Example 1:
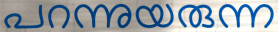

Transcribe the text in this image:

പറന്നുയരുന്ന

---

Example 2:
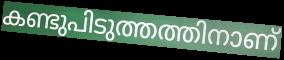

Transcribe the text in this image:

കണ്ടുപിടുത്തത്തിനാണ്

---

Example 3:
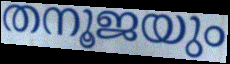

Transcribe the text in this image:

തനൂജയും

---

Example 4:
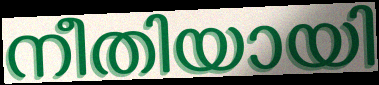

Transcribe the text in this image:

നീതിയായി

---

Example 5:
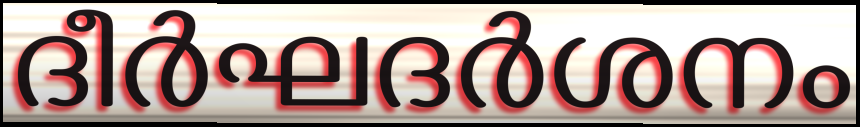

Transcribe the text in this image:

ദീർഘദർശനം